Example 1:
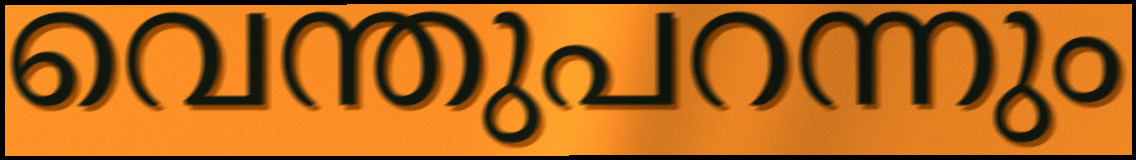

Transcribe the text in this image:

വെന്തുപറന്നും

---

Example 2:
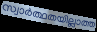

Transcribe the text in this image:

സ്വാർത്ഥതയില്ലാത്ത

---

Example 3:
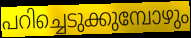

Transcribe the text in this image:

പറിച്ചെടുക്കുമ്പോഴും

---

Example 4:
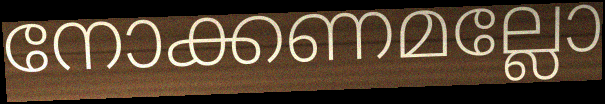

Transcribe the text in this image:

നോക്കണമല്ലോ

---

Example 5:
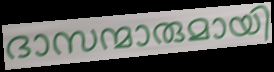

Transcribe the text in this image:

ദാസന്മാരുമായി